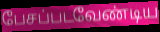
பேசப்படவேண்டிய